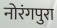
नोरंगपुरा